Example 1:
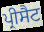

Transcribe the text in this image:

ਪ੍ਰੀਸੈਟ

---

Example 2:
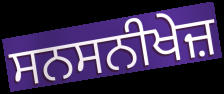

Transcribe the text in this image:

ਸਨਸਨੀਖੇਜ਼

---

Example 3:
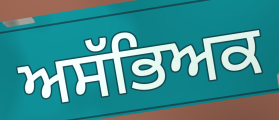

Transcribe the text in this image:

ਅਸੱਭਿਅਕ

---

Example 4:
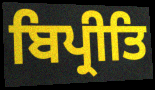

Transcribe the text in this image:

ਬਿਪ੍ਰੀਤਿ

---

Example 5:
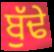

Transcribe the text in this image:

ਬੁੱਢੇ